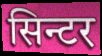
सिन्टर